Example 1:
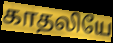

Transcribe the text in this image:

காதலியே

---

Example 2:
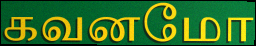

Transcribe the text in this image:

கவனமோ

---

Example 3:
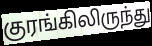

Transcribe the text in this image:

குரங்கிலிருந்து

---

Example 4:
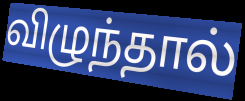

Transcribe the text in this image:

விழுந்தால்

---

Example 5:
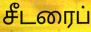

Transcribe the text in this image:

சீடரைப்